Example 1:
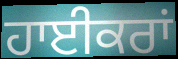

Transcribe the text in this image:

ਹਾਈਕਰਾਂ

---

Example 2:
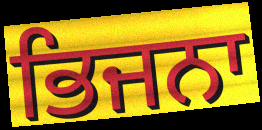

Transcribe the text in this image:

ਭਿਜਨਾ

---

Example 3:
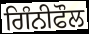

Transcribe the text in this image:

ਗਿੰਨੀਫੌਲ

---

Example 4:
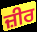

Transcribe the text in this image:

ਜ਼ੀਰ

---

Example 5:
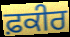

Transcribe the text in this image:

ਫ਼ਕੀਰ